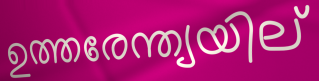
ഉത്തരേന്ത്യയില്